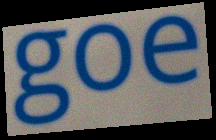
goe